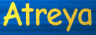
Atreya